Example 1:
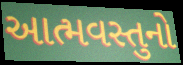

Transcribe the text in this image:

આત્મવસ્તુનો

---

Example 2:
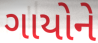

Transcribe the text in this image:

ગાયોને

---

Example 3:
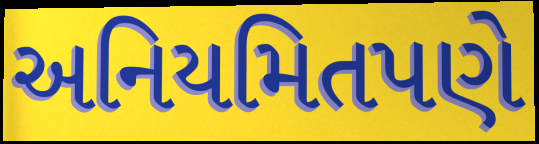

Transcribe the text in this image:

અનિયમિતપણે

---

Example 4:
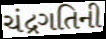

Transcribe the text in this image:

ચંદ્રગતિની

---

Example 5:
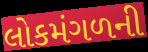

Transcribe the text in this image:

લોકમંગળની